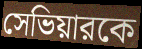
সেভিয়ারকে